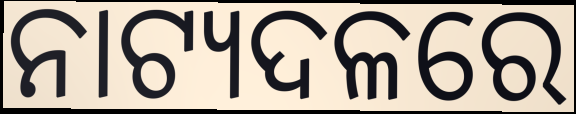
ନାଟ୍ୟଦଳରେ